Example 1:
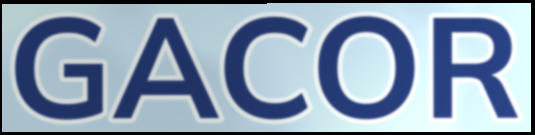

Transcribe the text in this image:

GACOR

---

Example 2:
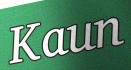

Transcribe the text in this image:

Kaun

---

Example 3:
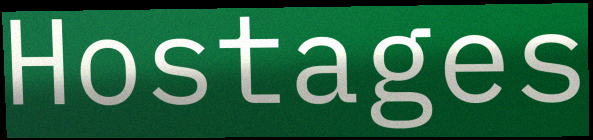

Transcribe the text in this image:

Hostages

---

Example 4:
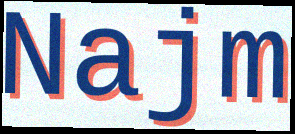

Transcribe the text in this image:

Najm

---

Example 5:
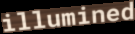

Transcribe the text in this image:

illumined